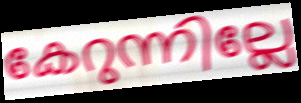
കേറുന്നില്ലേ